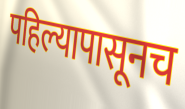
पहिल्यापासूनच